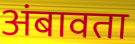
अंबावता